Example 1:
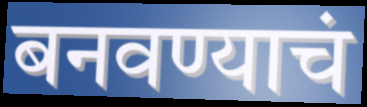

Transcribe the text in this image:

बनवण्याचं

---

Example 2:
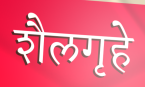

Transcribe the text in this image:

शैलगृहे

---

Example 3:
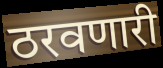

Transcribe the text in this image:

ठरवणारी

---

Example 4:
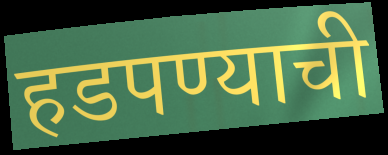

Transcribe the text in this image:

हडपण्याची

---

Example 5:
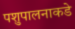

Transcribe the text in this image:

पशुपालनाकडे